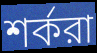
শর্করা